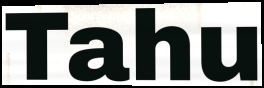
Tahu